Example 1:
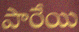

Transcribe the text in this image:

పారేయి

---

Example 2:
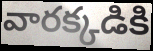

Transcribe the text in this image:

వారక్కడికి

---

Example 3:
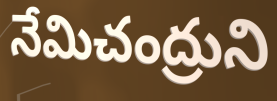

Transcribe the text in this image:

నేమిచంద్రుని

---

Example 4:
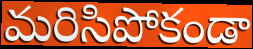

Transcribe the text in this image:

మరిసిపోకండా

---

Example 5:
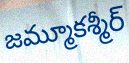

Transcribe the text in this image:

జమ్మూకశ్మీర్